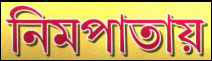
নিমপাতায়